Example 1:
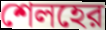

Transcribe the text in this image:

শেলহের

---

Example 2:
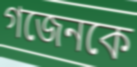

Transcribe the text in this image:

গজেনকে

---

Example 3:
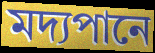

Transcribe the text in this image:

মদ্যপানে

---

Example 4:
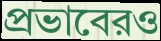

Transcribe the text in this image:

প্রভাবেরও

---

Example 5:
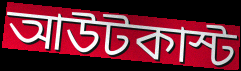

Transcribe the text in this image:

আউটকাস্ট